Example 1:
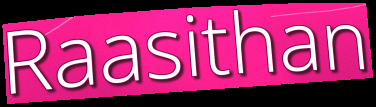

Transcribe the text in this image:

Raasithan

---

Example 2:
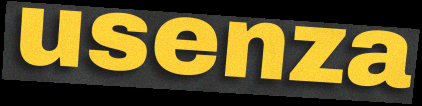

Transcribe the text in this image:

usenza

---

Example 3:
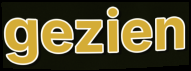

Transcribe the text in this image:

gezien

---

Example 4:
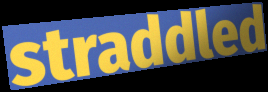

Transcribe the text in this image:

straddled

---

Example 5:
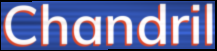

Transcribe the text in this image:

Chandril